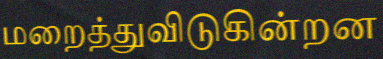
மறைத்துவிடுகின்றன